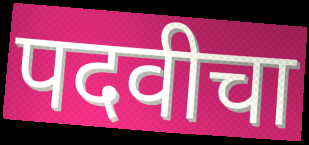
पदवीचा